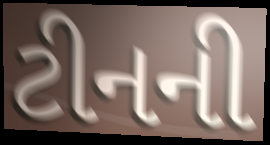
ટીનની